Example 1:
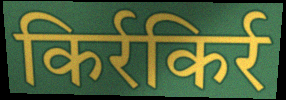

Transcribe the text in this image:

किर्रकिर्र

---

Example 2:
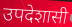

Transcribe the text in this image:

उपदेशासी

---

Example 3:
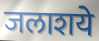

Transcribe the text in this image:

जलाशये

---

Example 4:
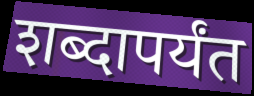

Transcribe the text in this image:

शब्दापर्यंत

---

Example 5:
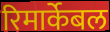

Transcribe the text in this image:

रिमार्केबल